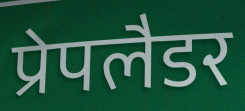
प्रेपलैडर